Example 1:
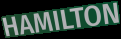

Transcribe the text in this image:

HAMILTON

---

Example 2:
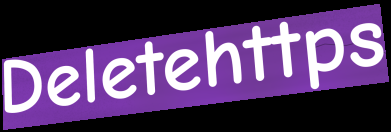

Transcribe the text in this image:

Deletehttps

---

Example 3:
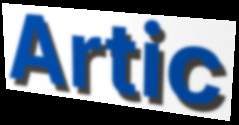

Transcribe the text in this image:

Artic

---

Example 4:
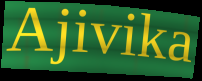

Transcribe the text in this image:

Ajivika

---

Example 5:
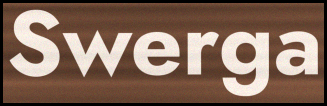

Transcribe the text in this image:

Swerga